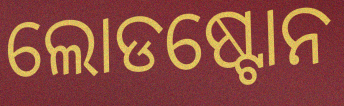
ଲୋଡଷ୍ଟୋନ